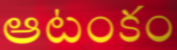
ఆటంకం